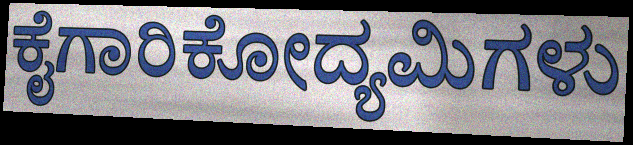
ಕೈಗಾರಿಕೋದ್ಯಮಿಗಳು